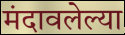
मंदावलेल्या